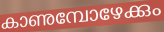
കാണുമ്പോഴേക്കും